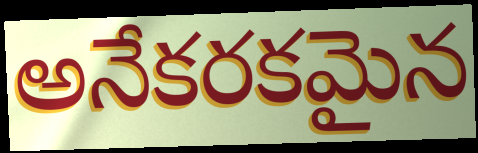
అనేకరకమైన